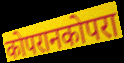
कोपरानकोपरा